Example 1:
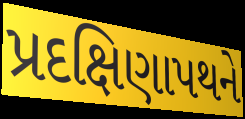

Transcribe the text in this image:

પ્રદક્ષિણાપથને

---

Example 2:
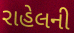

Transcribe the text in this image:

રાહેલની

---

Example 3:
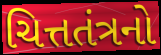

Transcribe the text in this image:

ચિત્તતંત્રનો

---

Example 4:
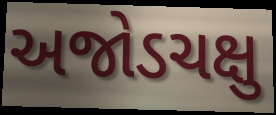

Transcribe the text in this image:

અજોડચક્ષુ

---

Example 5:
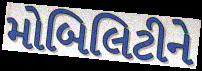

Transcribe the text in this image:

મોબિલિટીને